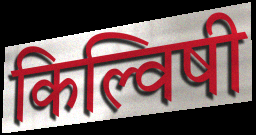
किल्विषी